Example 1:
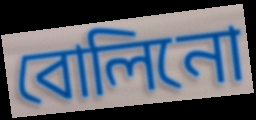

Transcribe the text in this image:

বোলিনো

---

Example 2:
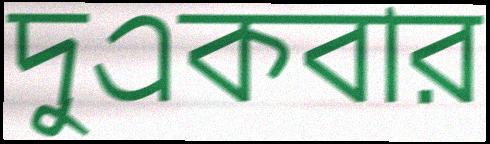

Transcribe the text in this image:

দুএকবার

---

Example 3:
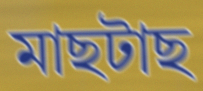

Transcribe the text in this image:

মাছটাছ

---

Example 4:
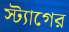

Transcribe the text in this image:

স্ট্যাগের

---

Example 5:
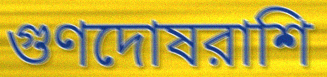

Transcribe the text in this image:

গুণদোষরাশি